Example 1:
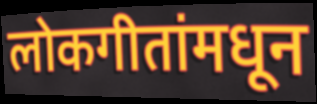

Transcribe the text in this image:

लोकगीतांमधून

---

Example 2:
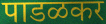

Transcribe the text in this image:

पाडळकर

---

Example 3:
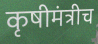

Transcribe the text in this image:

कृषीमंत्रीच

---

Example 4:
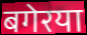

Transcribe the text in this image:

बगेरया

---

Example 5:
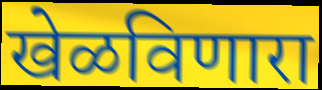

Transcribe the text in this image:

खेळविणारा